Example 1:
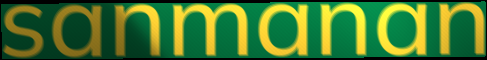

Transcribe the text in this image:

sanmanan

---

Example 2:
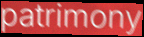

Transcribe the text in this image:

patrimony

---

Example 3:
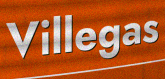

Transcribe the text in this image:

Villegas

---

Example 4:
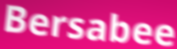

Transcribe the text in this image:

Bersabee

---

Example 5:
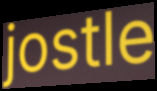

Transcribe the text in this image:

jostle